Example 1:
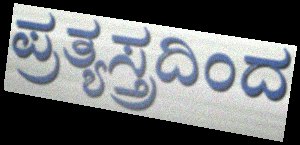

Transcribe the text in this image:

ಪ್ರತ್ಯಸ್ತ್ರದಿಂದ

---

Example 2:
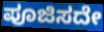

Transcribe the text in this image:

ಪೂಜಿಸದೇ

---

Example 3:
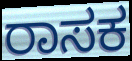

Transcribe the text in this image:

ರಾಸಕ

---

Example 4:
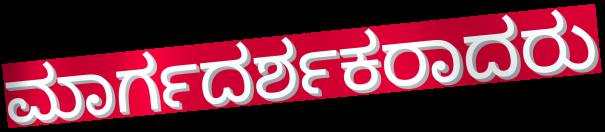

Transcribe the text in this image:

ಮಾರ್ಗದರ್ಶಕರಾದರು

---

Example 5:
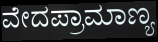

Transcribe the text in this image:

ವೇದಪ್ರಾಮಾಣ್ಯ